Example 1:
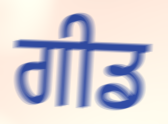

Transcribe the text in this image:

ਗੀਡ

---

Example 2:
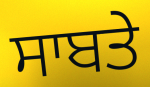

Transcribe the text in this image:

ਸਾਬਤੇ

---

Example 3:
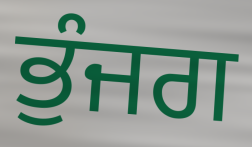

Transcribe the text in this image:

ਭੁੰਜਗ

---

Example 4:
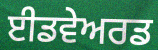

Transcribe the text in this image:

ਈਡਵੇਅਰਡ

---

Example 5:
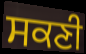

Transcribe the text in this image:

ਸਕਣੀ